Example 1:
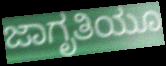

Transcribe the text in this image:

ಜಾಗೃತಿಯೂ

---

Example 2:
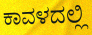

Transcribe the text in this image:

ಕಾವಳದಲ್ಲಿ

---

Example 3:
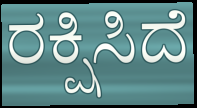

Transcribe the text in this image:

ರಕ್ಷಿಸಿದೆ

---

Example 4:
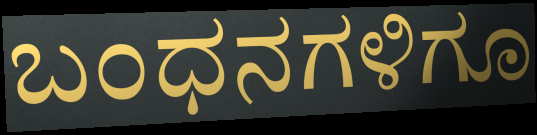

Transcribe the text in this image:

ಬಂಧನಗಳಿಗೂ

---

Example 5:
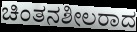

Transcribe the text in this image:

ಚಿಂತನಶೀಲರಾದ